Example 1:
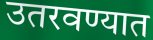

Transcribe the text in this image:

उतरवण्यात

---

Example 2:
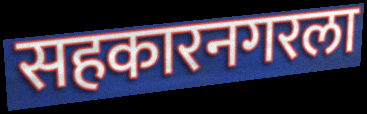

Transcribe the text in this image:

सहकारनगरला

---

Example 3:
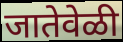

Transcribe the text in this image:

जातेवेळी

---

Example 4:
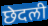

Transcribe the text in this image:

छेदली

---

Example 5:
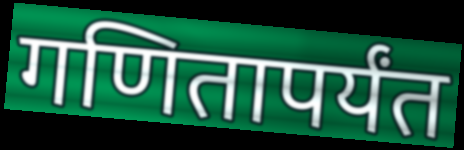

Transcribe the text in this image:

गणितापर्यंत